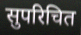
सुपरिचित